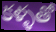
కళ్ళతో